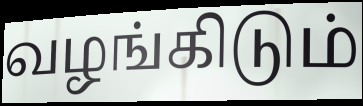
வழங்கிடும்